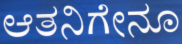
ಆತನಿಗೇನೂ